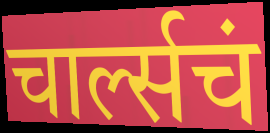
चार्ल्सचं